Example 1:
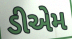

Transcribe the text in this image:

ડીએમ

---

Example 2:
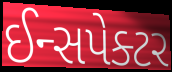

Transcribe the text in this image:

ઈન્સપેક્ટર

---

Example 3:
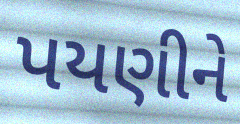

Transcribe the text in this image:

પયણીને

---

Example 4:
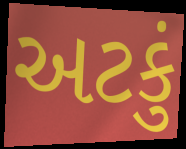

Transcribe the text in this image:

અટકું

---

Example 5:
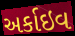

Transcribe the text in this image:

અર્કાઇવ